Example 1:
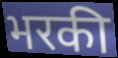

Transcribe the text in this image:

भरकी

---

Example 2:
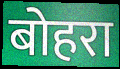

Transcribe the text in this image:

बोहरा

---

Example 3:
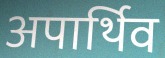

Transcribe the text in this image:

अपार्थिव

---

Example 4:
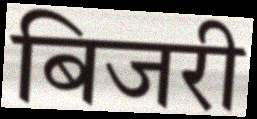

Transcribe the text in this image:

बिजरी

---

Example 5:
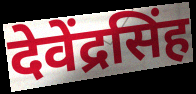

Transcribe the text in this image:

देवेंद्रसिंह